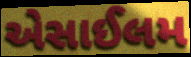
એસાઈલમ